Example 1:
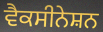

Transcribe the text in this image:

ਵੈਕਸੀਨੇਸ਼ਨ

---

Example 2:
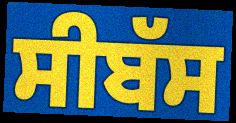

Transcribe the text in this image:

ਸੀਬੱਸ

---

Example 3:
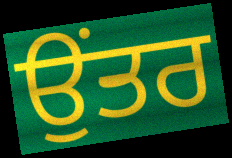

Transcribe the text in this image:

ਉਂਤਰ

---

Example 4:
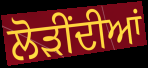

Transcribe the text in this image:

ਲੋੜੀਂਦੀਆਂ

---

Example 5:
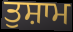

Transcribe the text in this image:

ਤੁਸ਼ਾਮ